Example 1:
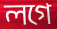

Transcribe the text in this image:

লগে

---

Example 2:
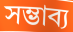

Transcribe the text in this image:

সম্ভাব্য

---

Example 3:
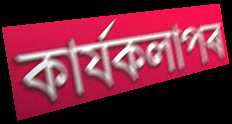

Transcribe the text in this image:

কাৰ্যকলাপৰ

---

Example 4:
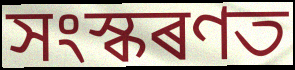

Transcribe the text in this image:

সংস্কৰণত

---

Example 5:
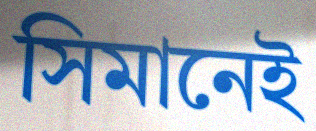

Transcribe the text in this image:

সিমানেই